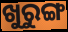
ଖୁରୁଙ୍ଗ